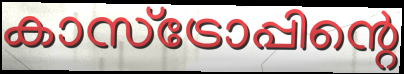
കാസ്ട്രോപ്പിന്റെ